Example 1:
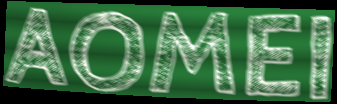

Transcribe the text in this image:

AOMEI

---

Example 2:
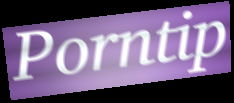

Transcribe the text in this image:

Porntip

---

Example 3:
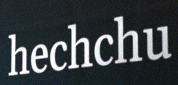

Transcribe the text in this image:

hechchu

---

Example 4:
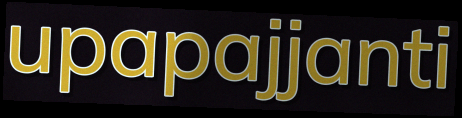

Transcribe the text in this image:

upapajjanti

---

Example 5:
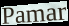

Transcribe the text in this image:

Pamar